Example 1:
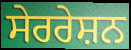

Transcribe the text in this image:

ਸੇਰਰੇਸ਼ਨ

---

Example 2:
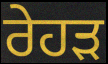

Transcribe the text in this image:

ਰੇਹੜ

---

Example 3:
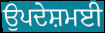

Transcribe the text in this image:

ਉਪਦੇਸ਼ਮਈ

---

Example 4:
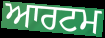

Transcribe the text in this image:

ਆਰਟਮ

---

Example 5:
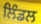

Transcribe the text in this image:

ਲਿੰਡਲ